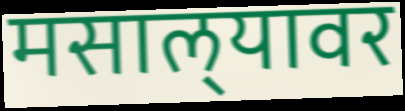
मसाल्यावर